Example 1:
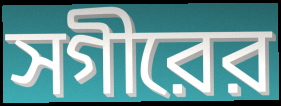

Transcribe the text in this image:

সগীরের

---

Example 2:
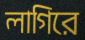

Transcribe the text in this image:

লাগিরে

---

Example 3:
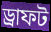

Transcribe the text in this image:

ড্রাফট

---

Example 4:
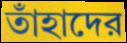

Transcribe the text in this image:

তাঁহাদের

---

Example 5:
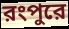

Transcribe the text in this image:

রংপুরে